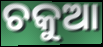
ଚକୁଆ